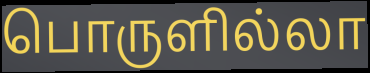
பொருளில்லா